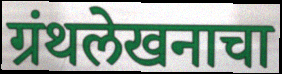
ग्रंथलेखनाचा